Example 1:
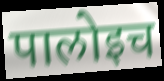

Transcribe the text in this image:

पालोइच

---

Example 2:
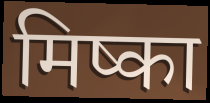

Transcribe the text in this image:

मिष्का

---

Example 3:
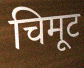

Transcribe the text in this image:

चिमूट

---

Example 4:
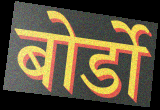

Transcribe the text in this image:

बोर्डो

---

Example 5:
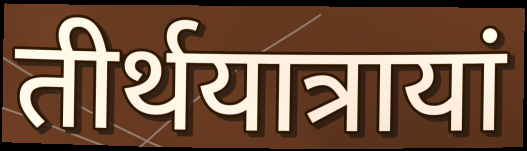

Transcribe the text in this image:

तीर्थयात्रायां